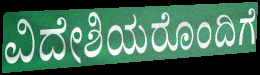
ವಿದೇಶಿಯರೊಂದಿಗೆ